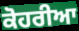
ਕੋਹਰੀਆ